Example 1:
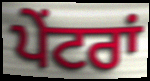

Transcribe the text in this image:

ਪੇਂਟਰਾਂ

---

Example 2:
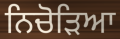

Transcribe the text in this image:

ਨਿਚੋੜਿਆ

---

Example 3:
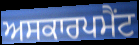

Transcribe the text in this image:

ਅਸਕਾਰਪਮੈਂਟ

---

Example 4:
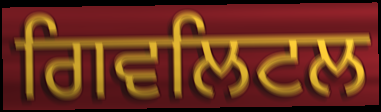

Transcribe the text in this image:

ਗਿਵਲਿਟਲ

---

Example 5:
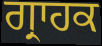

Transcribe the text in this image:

ਗ੍ਰਾਹਕ